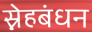
स्नेहबंधन